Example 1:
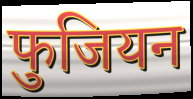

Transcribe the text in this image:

फुजियन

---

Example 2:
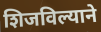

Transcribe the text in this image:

शिजविल्याने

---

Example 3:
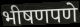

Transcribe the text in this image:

भीषणपणे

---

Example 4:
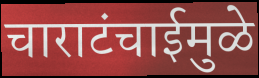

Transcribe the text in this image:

चाराटंचाईमुळे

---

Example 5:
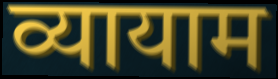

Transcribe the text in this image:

व्यायाम